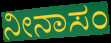
ನೀನಾಸಂ